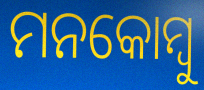
ମନକୋମ୍ବୁ